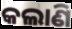
କଲାଣି